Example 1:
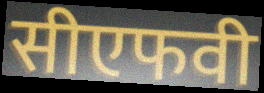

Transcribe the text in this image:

सीएफवी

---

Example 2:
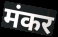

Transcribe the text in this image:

मंकर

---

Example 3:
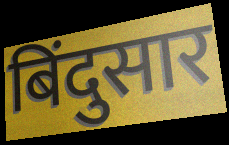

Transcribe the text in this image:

बिंदुसार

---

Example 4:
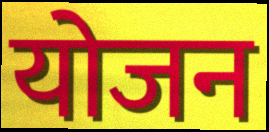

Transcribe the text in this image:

योजन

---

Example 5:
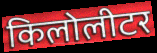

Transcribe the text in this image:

किलोलीटर